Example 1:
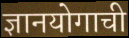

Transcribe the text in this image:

ज्ञानयोगाची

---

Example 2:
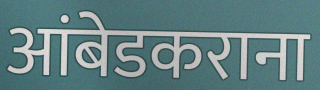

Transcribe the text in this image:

आंबेडकराना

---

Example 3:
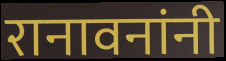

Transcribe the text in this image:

रानावनांनी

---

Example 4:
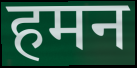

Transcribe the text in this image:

हमन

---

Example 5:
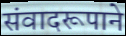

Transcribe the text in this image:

संवादरूपाने